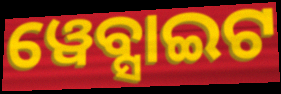
ୱେବ୍ସାଇଟ